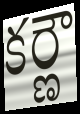
కర్ణౌ